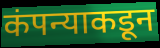
कंपन्याकडून